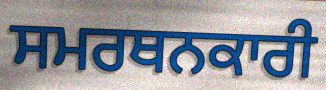
ਸਮਰਥਨਕਾਰੀ